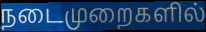
நடைமுறைகளில்